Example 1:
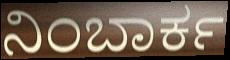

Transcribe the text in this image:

ನಿಂಬಾರ್ಕ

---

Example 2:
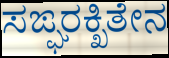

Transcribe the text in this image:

ಸಙ್ಘರಕ್ಖಿತೇನ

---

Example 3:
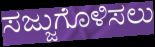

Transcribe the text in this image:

ಸಜ್ಜುಗೊಳಿಸಲು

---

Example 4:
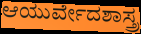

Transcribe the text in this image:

ಆಯುರ್ವೇದಶಾಸ್ತ್ರ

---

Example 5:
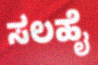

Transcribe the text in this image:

ಸಲಹೈ